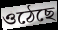
ওঠেছে